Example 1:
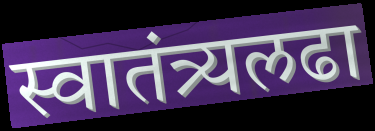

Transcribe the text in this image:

स्वातंत्र्यलढा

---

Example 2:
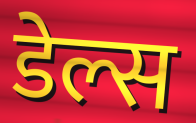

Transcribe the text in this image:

डेल्स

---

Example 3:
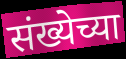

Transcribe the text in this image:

संख्येच्या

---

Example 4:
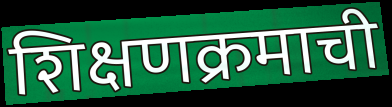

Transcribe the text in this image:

शिक्षणक्रमाची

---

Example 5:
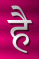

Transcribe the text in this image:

है